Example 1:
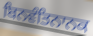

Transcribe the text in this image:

ਬਿਨਵੰਤਿਨਾਨਕ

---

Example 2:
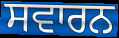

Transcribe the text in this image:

ਸਵਾਰਨ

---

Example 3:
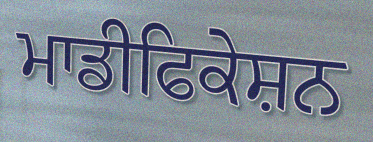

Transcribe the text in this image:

ਮਾਡੀਫਿਕੇਸ਼ਨ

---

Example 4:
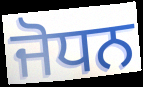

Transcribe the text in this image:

ਜੋਧਨ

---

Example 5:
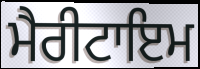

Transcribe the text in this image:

ਮੈਰੀਟਾਇਮ